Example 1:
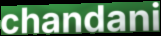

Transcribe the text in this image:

chandani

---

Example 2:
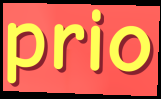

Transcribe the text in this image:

prio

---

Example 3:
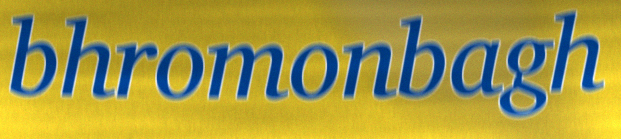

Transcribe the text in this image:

bhromonbagh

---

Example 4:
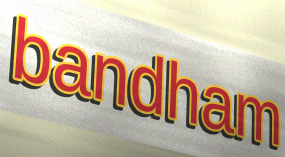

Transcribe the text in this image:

bandham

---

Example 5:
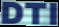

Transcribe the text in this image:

DTI